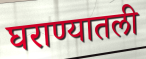
घराण्यातली